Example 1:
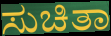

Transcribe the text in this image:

ಸುಚಿತಾ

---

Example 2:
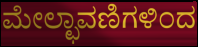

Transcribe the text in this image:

ಮೇಲ್ಛಾವಣಿಗಳಿಂದ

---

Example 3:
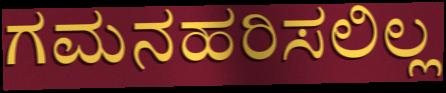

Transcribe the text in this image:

ಗಮನಹರಿಸಲಿಲ್ಲ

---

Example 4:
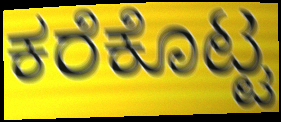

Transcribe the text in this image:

ಕರೆಕೊಟ್ಟ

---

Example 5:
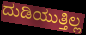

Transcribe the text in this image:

ದುಡಿಯುತ್ತಿಲ್ಲ